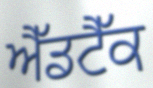
ਐੱਡਟੈੱਕ